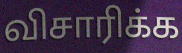
விசாரிக்க